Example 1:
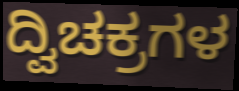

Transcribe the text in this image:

ದ್ವಿಚಕ್ರಗಳ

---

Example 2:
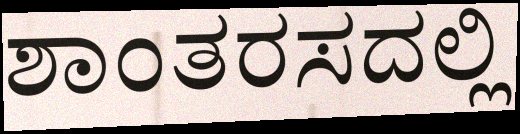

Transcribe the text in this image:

ಶಾಂತರಸದಲ್ಲಿ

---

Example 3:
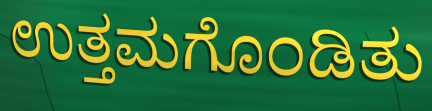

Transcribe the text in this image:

ಉತ್ತಮಗೊಂಡಿತು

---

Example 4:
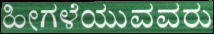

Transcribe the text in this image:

ಹೀಗಳೆಯುವವರು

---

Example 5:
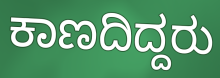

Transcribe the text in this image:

ಕಾಣದಿದ್ದರು